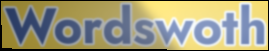
Wordswoth